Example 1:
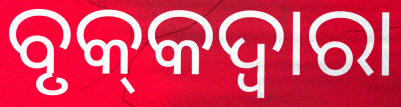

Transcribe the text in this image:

ବୃକ୍‌କଦ୍ଵାରା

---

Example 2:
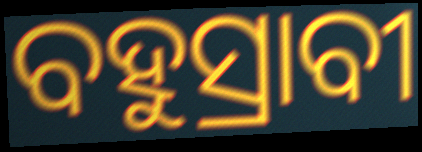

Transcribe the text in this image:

ବହୁସ୍ରାବୀ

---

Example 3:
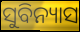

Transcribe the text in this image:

ସୁବିନ୍ୟାସ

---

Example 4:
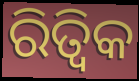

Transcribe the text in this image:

ରିତ୍ୱିକ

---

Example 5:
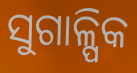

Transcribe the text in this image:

ସୁଗାଳ୍ପିକ